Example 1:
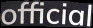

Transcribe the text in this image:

official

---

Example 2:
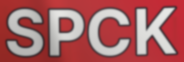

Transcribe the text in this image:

SPCK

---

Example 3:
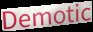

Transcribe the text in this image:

Demotic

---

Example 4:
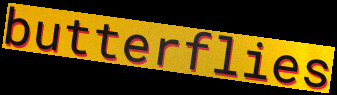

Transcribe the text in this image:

butterflies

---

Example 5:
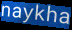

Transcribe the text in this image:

naykha